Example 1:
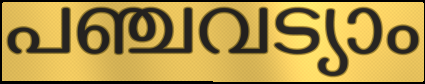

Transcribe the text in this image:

പഞ്ചവട്യാം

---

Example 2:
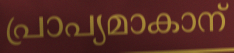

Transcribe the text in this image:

പ്രാപ്യമാകാന്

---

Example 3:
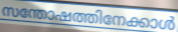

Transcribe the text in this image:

സന്തോഷത്തിനേക്കാൾ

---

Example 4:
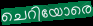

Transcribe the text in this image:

ചെറിയോരെ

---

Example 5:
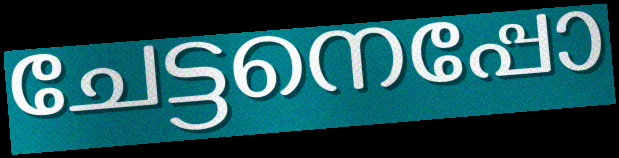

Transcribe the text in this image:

ചേട്ടനെപ്പോ